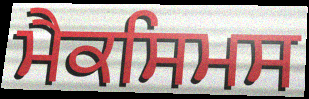
ਮੈਕਸਿਮਸ